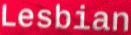
Lesbian